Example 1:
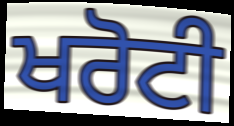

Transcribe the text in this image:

ਖਰੋਟੀ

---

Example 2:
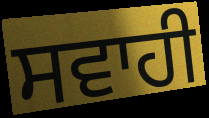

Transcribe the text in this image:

ਸਵਾਹੀ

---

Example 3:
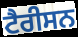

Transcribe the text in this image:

ਟੈਰੀਸਨ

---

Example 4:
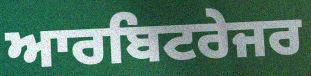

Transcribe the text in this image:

ਆਰਬਿਟਰੇਜਰ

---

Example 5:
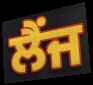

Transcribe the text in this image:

ਲੈਂਜ